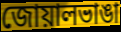
জোয়ালভাঙা